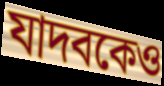
যাদবকেও